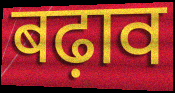
बढ़ाव